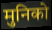
मुनिको